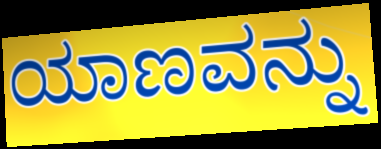
ಯಾಣವನ್ನು